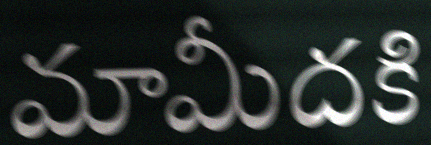
మామీదకి